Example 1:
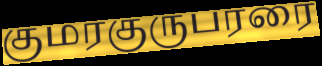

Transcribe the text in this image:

குமரகுருபரரை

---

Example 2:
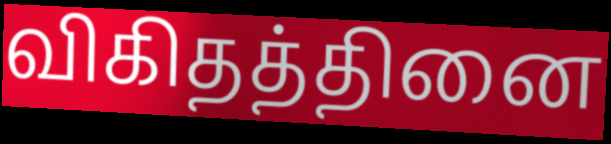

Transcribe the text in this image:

விகிதத்தினை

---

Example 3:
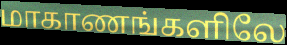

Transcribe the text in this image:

மாகாணங்களிலே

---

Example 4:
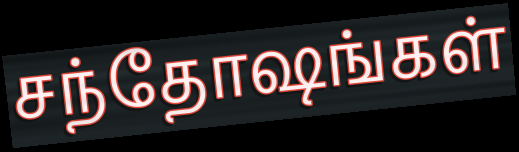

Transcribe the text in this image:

சந்தோஷங்கள்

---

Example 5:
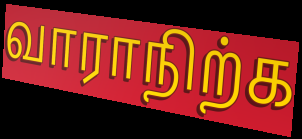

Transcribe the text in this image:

வாராநிற்க